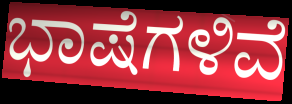
ಭಾಷೆಗಳಿವೆ